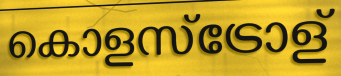
കൊളസ്ട്രോള്